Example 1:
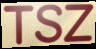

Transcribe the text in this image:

TSZ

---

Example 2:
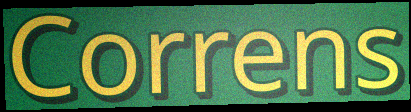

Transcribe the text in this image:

Correns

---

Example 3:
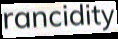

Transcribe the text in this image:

rancidity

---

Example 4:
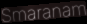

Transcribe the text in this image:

Smaranam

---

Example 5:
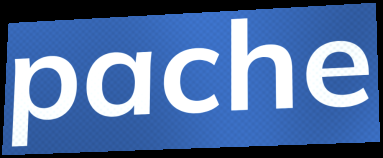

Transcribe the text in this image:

pache